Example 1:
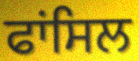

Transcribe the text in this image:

ਫਾਂਸਿਲ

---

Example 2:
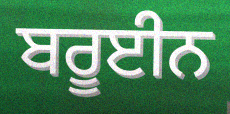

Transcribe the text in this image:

ਬਰੂਈਨ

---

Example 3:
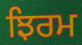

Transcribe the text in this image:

ਝਿਰਮ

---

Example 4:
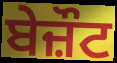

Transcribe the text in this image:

ਬੇਜ਼ੌਟ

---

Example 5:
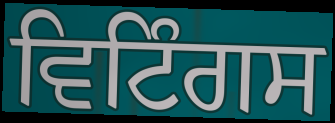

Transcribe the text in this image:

ਵਿਟਿੰਗਸ